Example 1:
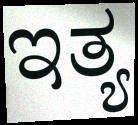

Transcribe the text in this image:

ಇತ್ಯ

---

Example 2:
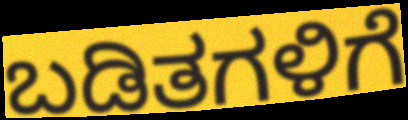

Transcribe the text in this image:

ಬಡಿತಗಳಿಗೆ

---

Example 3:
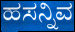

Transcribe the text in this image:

ಹಸನ್ನಿವ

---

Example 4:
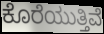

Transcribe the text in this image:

ಕೊರೆಯುತ್ತಿವೆ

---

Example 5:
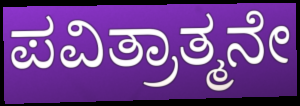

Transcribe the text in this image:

ಪವಿತ್ರಾತ್ಮನೇ